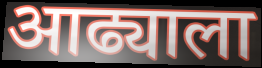
आढ्याला